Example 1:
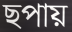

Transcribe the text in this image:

ছপায়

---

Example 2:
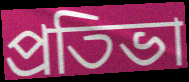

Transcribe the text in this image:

প্ৰতিভা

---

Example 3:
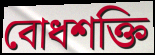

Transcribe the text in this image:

বোধশক্তি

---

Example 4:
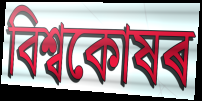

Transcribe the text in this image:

বিশ্বকোষৰ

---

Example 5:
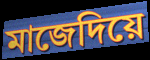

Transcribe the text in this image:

মাজেদিয়ে